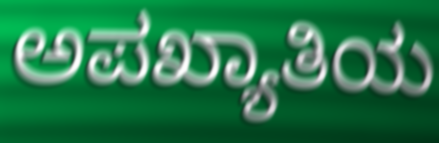
ಅಪಖ್ಯಾತಿಯ